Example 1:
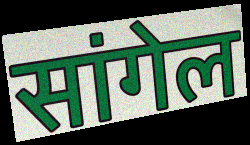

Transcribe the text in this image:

सांगेल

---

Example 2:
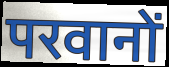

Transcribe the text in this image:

परवानों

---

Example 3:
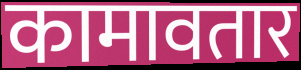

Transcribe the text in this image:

कामावतार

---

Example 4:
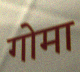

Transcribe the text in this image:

गोमा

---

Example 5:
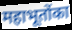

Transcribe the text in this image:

महाभूतोंका